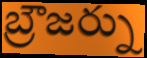
బ్రౌజర్ను